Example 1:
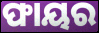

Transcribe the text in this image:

ଫାୟର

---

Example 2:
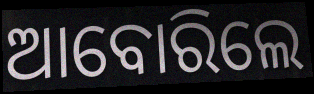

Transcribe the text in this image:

ଆବୋରିଲେ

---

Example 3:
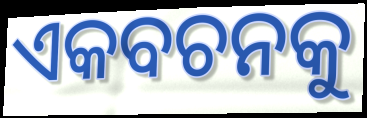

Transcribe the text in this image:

ଏକବଚନକୁ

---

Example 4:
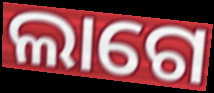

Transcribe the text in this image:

ଲାଗେ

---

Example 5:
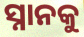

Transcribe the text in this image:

ସ୍ନାନକୁ